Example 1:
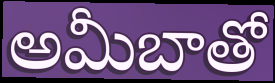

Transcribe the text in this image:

అమీబాతో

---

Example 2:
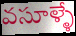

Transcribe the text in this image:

వసూళ్ళే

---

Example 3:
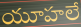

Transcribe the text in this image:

యూహలే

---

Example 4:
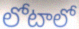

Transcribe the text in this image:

లోటాలో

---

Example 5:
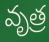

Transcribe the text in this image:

వృత్ర